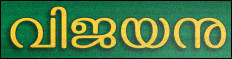
വിജയനു